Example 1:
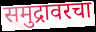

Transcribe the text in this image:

समुद्रावरचा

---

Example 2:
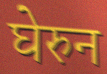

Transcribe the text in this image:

घेरुन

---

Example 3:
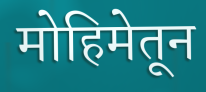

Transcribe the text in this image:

मोहिमेतून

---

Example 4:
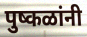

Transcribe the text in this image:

पुष्कळांनी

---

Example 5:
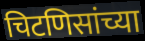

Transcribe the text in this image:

चिटणिसांच्या